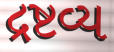
દ્રષ્ટવ્ય